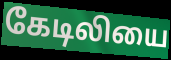
கேடிலியை